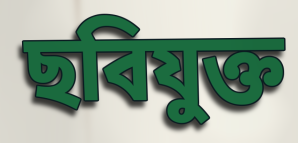
ছবিযুক্ত